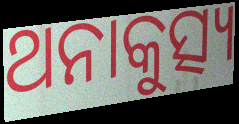
ଥନାକୁତ୍ସ୍ୟ